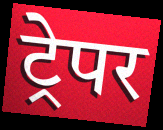
ट्रेपर